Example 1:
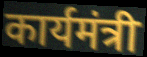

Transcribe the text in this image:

कार्यमंत्री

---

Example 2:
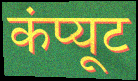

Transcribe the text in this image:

कंप्यूट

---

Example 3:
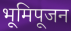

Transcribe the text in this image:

भूमिपूजन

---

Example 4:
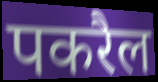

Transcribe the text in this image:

पकरैल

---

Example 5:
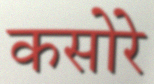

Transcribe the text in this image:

कसोरे